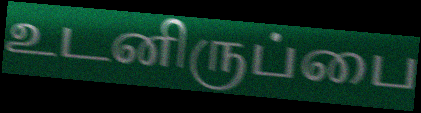
உடனிருப்பை